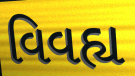
વિવહ્ય